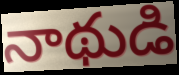
నాథుడి